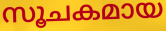
സൂചകമായ